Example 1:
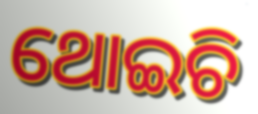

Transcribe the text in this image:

ଥୋଇଚି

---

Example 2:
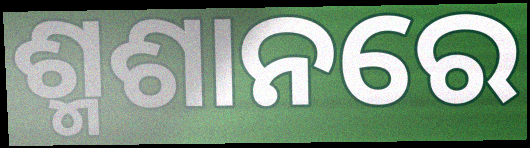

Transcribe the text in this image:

ଶ୍ମଶାନରେ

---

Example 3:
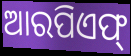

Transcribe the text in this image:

ଆରପିଏଫ୍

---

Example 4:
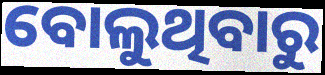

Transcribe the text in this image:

ବୋଲୁଥିବାରୁ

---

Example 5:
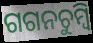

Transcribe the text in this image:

ଗଗନଚୁମ୍ବି